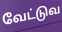
வேட்டுவ